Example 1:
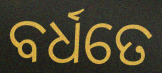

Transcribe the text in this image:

ବର୍ଧତେ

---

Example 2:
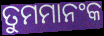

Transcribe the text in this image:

ତୁମମାନଂକ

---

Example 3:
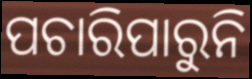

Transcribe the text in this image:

ପଚାରିପାରୁନି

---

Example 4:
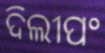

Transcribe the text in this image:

ଦିଲୀପଂ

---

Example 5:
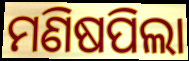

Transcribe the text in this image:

ମଣିଷପିଲା